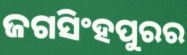
ଜଗସିଂହପୁରର